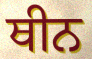
ਥੀਨ